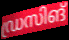
ഡ്രസിങ്